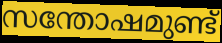
സന്തോഷമുണ്ട്